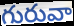
గురువా